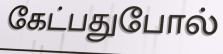
கேட்பதுபோல்